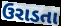
ઉરાડતા